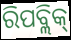
ରିପବ୍ଲିକ୍